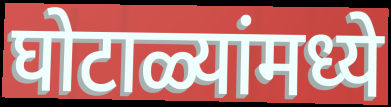
घोटाळ्यांमध्ये